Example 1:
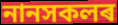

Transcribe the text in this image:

নানসকলৰ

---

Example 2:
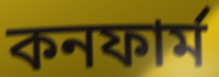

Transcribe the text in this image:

কনফাৰ্ম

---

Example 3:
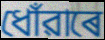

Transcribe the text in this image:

ধোঁৱাৰে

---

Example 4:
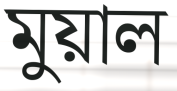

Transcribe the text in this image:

মুয়াল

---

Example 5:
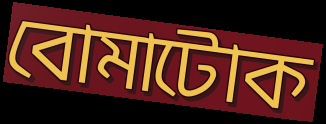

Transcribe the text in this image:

বোমাটোক